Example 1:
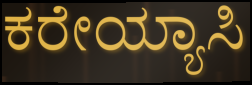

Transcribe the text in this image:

ಕರೇಯ್ಯಾಸಿ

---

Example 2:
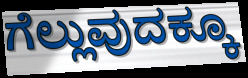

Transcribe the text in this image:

ಗೆಲ್ಲುವುದಕ್ಕೂ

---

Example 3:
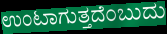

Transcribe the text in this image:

ಉಂಟಾಗುತ್ತದೆಂಬುದು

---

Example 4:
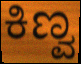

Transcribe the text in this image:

ಕಿಣ್ವ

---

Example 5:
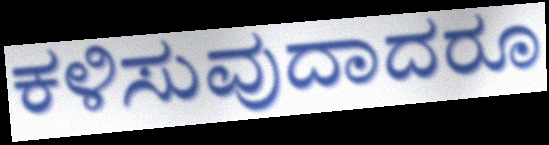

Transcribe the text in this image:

ಕಳಿಸುವುದಾದರೂ